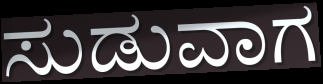
ಸುಡುವಾಗ